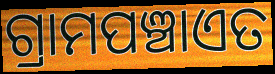
ଗ୍ରାମପଞ୍ଚାଏତ